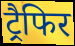
ट्रैफिर